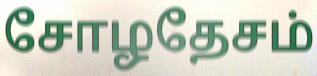
சோழதேசம்